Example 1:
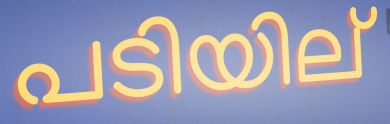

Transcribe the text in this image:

പടിയില്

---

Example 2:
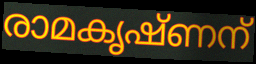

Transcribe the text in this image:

രാമകൃഷ്ണന്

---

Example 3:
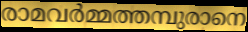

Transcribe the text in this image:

രാമവർമ്മത്തമ്പുരാനെ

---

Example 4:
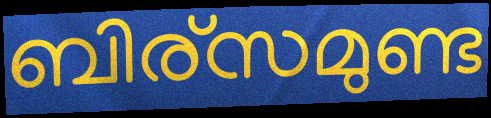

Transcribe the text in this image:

ബിര്സമുണ്ട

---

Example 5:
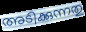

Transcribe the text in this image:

അടിക്കുന്നതു